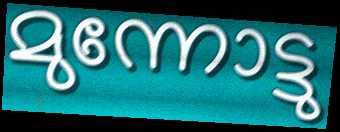
മുന്നോട്ടു